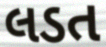
લડત